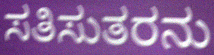
ಸತಿಸುತರನು